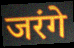
जरंगे